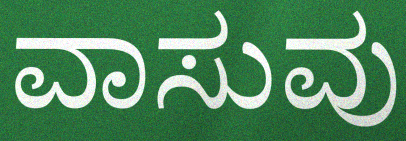
ವಾಸುವು